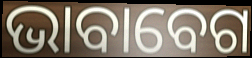
ଭାବାବେଗ